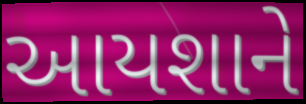
આયશાને